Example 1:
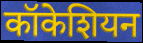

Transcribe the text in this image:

कॉकेशियन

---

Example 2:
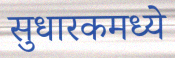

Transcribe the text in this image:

सुधारकमध्ये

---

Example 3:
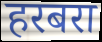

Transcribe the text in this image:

हरबरा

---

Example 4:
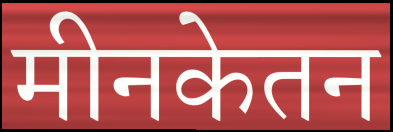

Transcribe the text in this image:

मीनकेतन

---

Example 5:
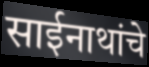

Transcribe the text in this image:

साईनाथांचे